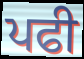
ਪਫੀ